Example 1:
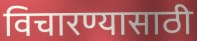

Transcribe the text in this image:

विचारण्यासाठी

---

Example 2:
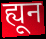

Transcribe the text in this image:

ह्यून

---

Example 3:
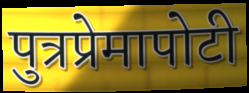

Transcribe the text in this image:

पुत्रप्रेमापोटी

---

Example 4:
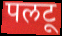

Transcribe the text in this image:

पलटू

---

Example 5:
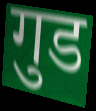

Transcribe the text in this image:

गुड